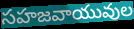
సహజవాయువుల